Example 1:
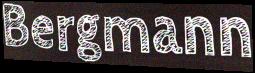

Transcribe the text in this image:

Bergmann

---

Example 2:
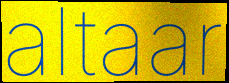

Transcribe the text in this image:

altaar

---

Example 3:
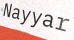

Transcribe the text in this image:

Nayyar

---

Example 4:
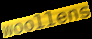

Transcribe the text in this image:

woollens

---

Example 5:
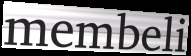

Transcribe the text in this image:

membeli